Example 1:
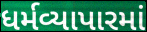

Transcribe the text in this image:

ધર્મવ્યાપારમાં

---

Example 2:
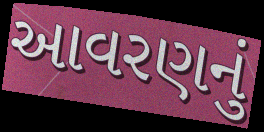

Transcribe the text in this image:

આવરણનું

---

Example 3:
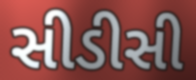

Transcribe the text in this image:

સીડીસી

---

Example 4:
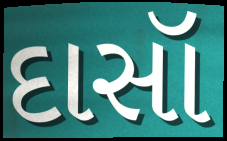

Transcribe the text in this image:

દાસૉ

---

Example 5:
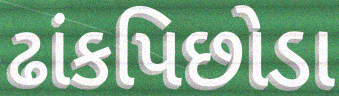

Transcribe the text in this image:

ઢાંકપિછોડા